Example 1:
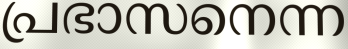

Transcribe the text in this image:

പ്രഭാസനെന്ന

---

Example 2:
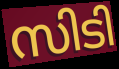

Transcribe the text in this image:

സിടി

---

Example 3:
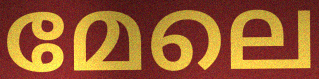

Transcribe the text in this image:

മേലെ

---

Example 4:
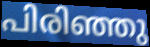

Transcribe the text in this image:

പിരിഞ്ഞു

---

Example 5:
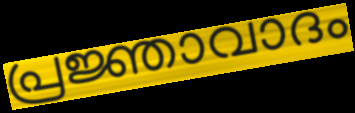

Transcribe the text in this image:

പ്രജ്ഞാവാദം